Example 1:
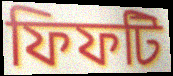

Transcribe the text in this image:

ফিফটি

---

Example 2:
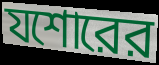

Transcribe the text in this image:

যশোরের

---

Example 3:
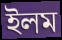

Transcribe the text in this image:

ইলম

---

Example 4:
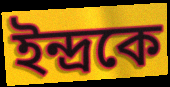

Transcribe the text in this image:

ইন্দ্রকে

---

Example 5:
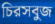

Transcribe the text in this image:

চিরসবুজ